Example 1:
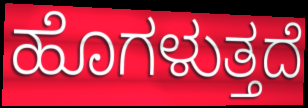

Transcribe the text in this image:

ಹೊಗಳುತ್ತದೆ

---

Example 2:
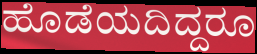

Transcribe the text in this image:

ಹೊಡೆಯದಿದ್ದರೂ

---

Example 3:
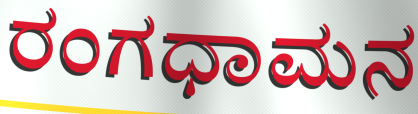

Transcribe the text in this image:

ರಂಗಧಾಮನ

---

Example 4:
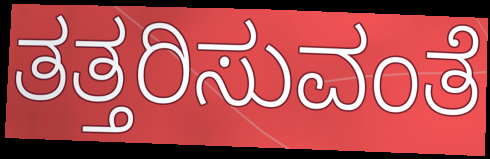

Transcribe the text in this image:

ತತ್ತರಿಸುವಂತೆ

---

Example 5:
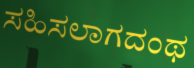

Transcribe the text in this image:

ಸಹಿಸಲಾಗದಂಥ